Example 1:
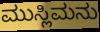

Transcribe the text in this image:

ಮುಸ್ಲಿಮನು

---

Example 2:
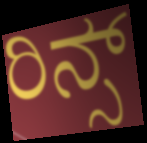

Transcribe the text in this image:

ರಿನ್ಸ್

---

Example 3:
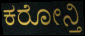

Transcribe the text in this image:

ಕರೋನ್ತಿ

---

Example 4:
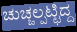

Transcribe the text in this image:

ಚುಚ್ಚಲ್ಪಟ್ಟಿದ್ದ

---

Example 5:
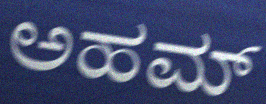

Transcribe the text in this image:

ಅಹಮ್